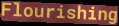
Flourishing